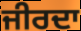
ਜੀਰਦਾ